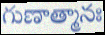
గుణాత్మానః